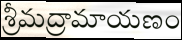
శ్రీమద్రామాయణం